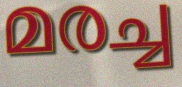
മരച്ച